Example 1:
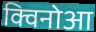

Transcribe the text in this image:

क्विनोआ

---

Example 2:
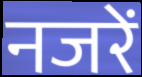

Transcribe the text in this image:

नजरें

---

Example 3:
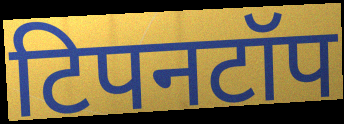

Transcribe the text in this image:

टिपनटॉप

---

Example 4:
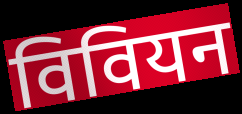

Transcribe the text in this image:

विवियन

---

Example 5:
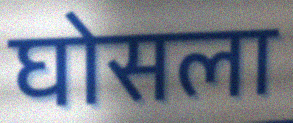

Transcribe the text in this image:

घोसला